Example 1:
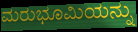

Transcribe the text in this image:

ಮರುಭೂಮಿಯನ್ನು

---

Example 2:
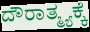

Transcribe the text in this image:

ದೌರಾತ್ಮ್ಯಕ್ಕೆ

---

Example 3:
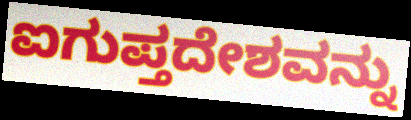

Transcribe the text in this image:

ಐಗುಪ್ತದೇಶವನ್ನು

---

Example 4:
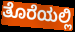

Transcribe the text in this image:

ತೊರೆಯಲ್ಲಿ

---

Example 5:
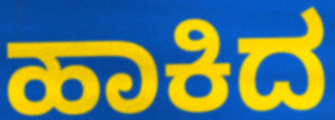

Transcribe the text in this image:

ಹಾಕಿದ